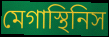
মেগাস্থিনিস